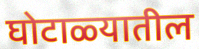
घोटाळ्यातील